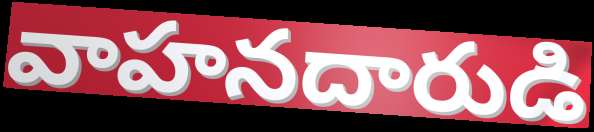
వాహనదారుడి